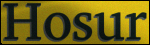
Hosur